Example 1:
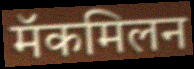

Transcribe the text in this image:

मॅकमिलन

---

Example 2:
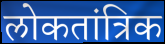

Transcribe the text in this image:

लोकतांत्रिक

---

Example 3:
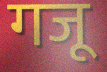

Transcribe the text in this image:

गजू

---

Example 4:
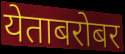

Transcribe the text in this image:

येताबरोबर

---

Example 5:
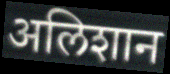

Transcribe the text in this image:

अलिशान